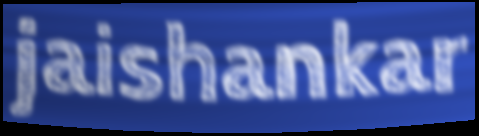
jaishankar